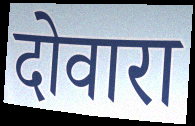
दोवारा